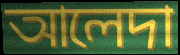
আলেদা